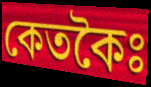
কেতকৈঃ